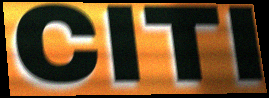
CITI